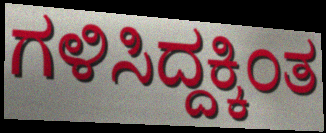
ಗಳಿಸಿದ್ದಕ್ಕಿಂತ